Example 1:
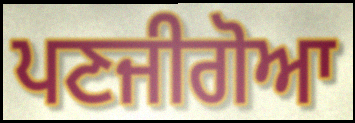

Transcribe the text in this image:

ਪਣਜੀਗੋਆ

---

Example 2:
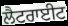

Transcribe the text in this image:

ਲੈਟਰਾਈਟ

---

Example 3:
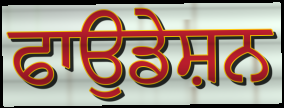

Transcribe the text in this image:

ਫਾਉਡੇਸ਼ਨ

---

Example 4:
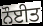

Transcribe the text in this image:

ਨੌਈਤ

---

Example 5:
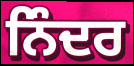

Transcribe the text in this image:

ਨਿੰਦਰ